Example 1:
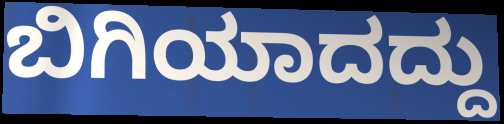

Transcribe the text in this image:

ಬಿಗಿಯಾದದ್ದು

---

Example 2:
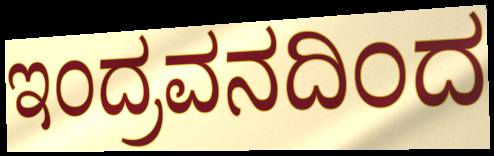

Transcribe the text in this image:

ಇಂದ್ರವನದಿಂದ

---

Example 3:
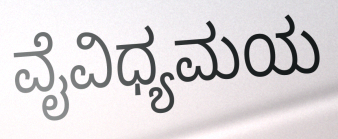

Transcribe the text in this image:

ವೈವಿಧ್ಯಮಯ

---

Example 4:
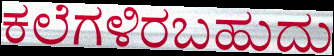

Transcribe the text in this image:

ಕಲೆಗಳಿರಬಹುದು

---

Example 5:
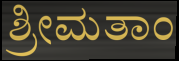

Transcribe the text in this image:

ಶ್ರೀಮತಾಂ